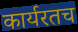
कार्यरतच